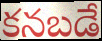
కనబడే